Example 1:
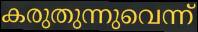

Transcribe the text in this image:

കരുതുന്നുവെന്ന്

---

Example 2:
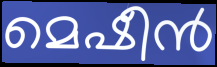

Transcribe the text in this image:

മെഷീൻ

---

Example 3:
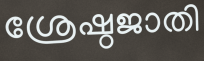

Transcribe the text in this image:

ശ്രേഷ്ഠജാതി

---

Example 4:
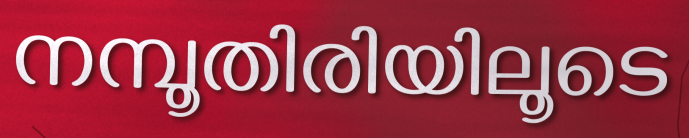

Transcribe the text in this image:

നമ്പൂതിരിയിലൂടെ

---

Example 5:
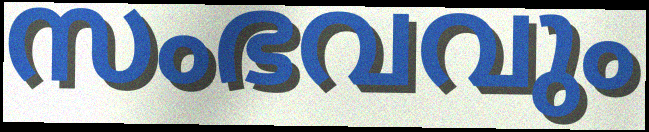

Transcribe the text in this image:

സംഭവവും